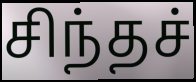
சிந்தச்